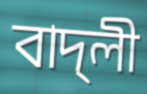
বাদ্‌লী